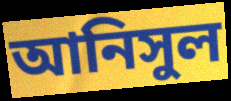
আনিসুল